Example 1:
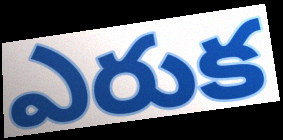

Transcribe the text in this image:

ఎరుక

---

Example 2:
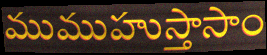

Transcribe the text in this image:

ముముహుస్తాసాం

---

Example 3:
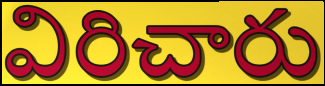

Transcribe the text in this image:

విరిచారు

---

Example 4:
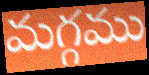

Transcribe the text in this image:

మగ్గము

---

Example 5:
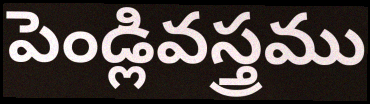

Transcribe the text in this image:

పెండ్లివస్త్రము